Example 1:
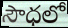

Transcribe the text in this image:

సౌధలో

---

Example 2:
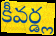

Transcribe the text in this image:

కీవర్డ్ల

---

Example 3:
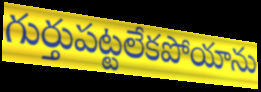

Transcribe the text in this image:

గుర్తుపట్టలేకపోయాను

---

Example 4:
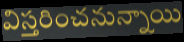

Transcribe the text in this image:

విస్తరించనున్నాయి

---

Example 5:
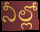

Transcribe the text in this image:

నీల్లో